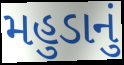
મહુડાનું